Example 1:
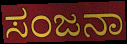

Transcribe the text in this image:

ಸಂಜನಾ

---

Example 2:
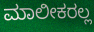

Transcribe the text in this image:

ಮಾಲೀಕರಲ್ಲ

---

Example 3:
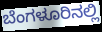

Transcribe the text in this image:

ಬೆಂಗಳೂರಿನಲ್ಲಿ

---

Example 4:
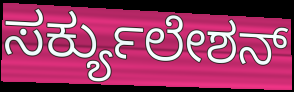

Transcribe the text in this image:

ಸರ್ಕ್ಯುಲೇಶನ್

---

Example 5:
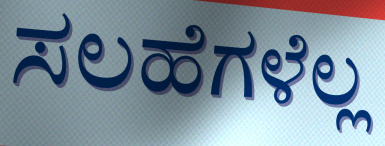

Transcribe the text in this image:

ಸಲಹೆಗಳೆಲ್ಲ